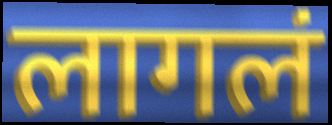
लागलं